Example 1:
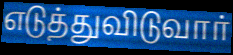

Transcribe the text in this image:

எடுத்துவிடுவார்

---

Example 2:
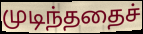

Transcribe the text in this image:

முடிந்ததைச்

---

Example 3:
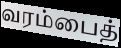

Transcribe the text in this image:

வரம்பைத்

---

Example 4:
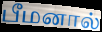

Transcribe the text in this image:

பீமனால்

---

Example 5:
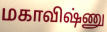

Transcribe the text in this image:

மகாவிஷ்ணு